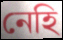
নেহি